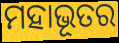
ମହାଭୂତର